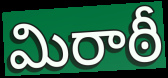
మిరాఠీ